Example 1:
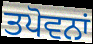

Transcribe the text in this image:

ਤਪੋਵਨਾਂ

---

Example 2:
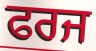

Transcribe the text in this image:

ਫਰਜ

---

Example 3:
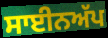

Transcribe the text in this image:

ਸਾਈਨਅੱਪ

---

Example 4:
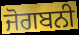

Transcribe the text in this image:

ਜੋਗਬਨੀ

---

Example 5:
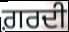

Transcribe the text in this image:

ਗ਼ਰਦੀ